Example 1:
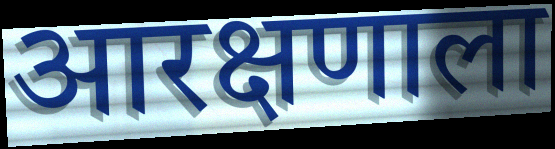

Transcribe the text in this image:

आरक्षणाला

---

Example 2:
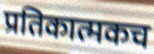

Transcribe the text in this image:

प्रतिकात्मकच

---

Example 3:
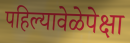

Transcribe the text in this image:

पहिल्यावेळेपेक्षा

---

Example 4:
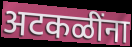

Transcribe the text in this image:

अटकळींना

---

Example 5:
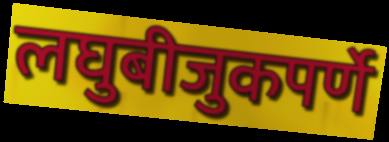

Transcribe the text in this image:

लघुबीजुकपर्णे